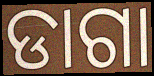
ଡାଗା